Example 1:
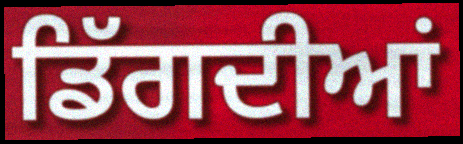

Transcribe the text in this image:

ਡਿੱਗਦੀਆਂ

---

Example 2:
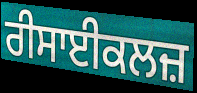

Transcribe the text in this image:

ਰੀਸਾਈਕਲਜ਼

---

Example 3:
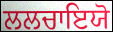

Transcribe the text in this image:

ਲਲਚਾਇਯੋ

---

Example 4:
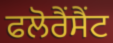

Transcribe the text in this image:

ਫਲੋਰੈਂਸੈਂਟ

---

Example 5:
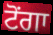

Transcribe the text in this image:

ਟੋਂਗਾ